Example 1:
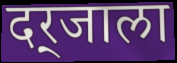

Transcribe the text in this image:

दर्जाला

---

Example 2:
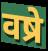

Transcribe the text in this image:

वष्रे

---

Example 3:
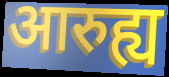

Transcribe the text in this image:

आरुह्य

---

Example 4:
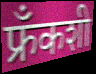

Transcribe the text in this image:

फ्रँकशी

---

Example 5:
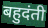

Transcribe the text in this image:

बहुदंती